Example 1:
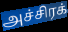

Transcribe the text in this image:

அச்சிரக்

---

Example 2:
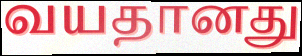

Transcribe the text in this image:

வயதானது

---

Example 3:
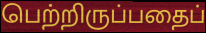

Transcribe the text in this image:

பெற்றிருப்பதைப்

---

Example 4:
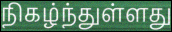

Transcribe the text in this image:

நிகழ்ந்துள்ளது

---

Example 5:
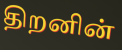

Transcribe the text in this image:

திறனின்